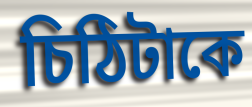
চিঠিটাকে